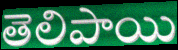
తెలిపాయి